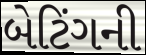
બેટિંગની